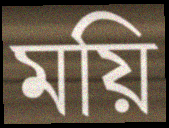
ময়ি